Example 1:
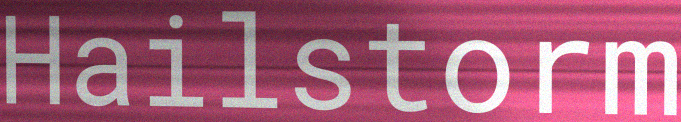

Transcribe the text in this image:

Hailstorm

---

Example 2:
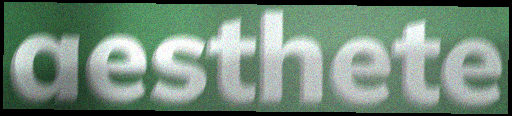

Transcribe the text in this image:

aesthete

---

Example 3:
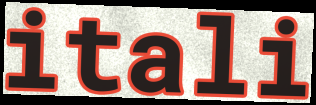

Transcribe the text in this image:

itali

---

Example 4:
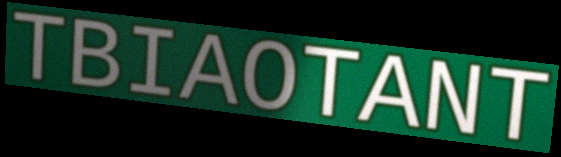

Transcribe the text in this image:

TBIAOTANT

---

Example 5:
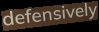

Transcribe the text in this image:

defensively